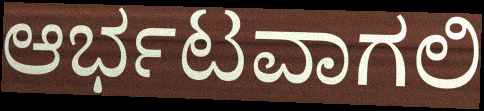
ಆರ್ಭಟವಾಗಲಿ